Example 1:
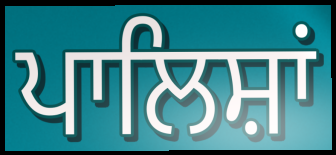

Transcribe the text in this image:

ਪਾਲਿਸ਼ਾਂ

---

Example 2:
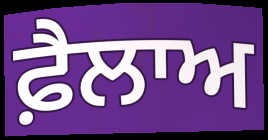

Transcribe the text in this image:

ਫ਼ੈਲਾਅ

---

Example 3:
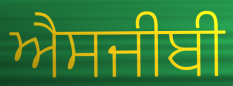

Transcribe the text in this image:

ਐਸਜੀਬੀ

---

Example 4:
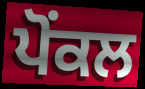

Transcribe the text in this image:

ਪੋਂਕਲ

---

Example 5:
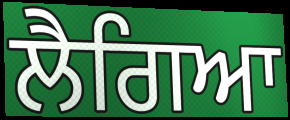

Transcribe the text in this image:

ਲੈਗਿਆ